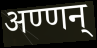
अण्णन्